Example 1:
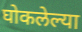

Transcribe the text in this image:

घोकलेल्या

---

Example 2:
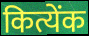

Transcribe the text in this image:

कित्येंक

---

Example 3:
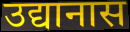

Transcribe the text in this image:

उद्यानास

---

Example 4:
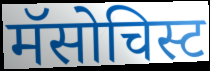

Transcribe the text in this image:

मॅसोचिस्ट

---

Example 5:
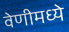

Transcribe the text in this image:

वेणीमध्ये